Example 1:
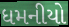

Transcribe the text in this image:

ધમનીયો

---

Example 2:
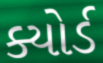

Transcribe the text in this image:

ક્યોર્ડ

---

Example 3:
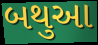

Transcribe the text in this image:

બથુઆ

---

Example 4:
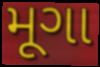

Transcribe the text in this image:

મૂગા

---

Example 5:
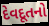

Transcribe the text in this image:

દેવદૂતનો